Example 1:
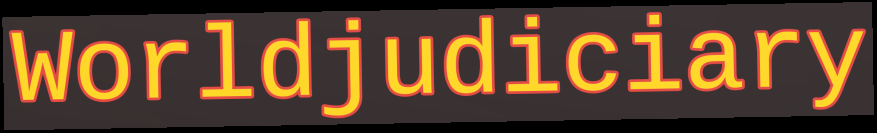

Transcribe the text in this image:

Worldjudiciary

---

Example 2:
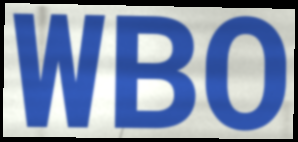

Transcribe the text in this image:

WBO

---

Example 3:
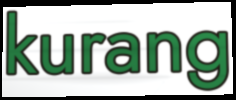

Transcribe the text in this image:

kurang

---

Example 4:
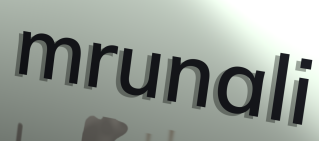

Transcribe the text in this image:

mrunali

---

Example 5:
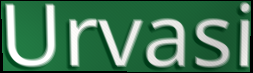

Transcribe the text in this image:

Urvasi